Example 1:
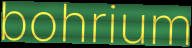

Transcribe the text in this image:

bohrium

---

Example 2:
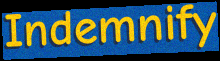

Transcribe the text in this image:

Indemnify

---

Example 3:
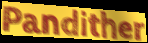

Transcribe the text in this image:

Pandither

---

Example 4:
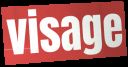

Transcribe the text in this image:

visage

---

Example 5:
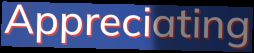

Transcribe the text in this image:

Appreciating